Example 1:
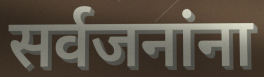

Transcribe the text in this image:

सर्वजनांना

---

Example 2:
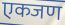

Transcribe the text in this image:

एकजण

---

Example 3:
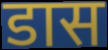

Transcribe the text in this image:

डास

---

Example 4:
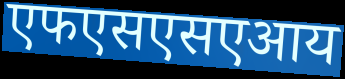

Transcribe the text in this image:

एफएसएसएआय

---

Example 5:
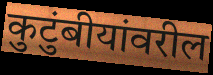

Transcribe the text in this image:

कुटुंबीयांवरील